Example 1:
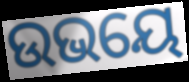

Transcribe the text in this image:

ଉଭୟେ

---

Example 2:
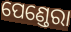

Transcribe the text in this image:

ପେଣ୍ଡେରା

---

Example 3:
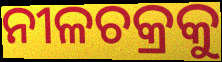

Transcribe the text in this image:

ନୀଳଚକ୍ରକୁ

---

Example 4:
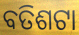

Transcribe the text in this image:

ବତିଶଟା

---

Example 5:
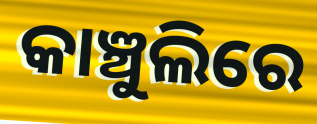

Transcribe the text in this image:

କାଞ୍ଚୁଲିରେ